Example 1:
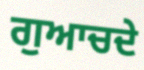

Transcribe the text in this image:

ਗੁਆਚਦੇ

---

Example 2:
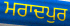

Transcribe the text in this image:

ਮਰਾਦਪੁਰ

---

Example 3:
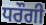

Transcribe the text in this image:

ਧਰੌਗੀ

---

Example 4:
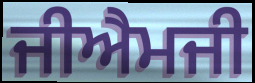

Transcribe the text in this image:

ਜੀਐਮਜੀ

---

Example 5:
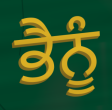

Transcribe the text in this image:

ਭੈਨੂੰ